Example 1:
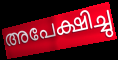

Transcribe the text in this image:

അപേക്ഷിച്ചു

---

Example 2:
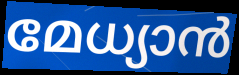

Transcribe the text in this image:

മേധ്യാൻ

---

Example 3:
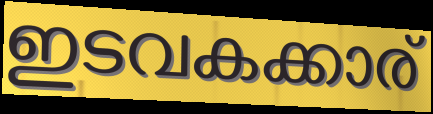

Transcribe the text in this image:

ഇടവകക്കാര്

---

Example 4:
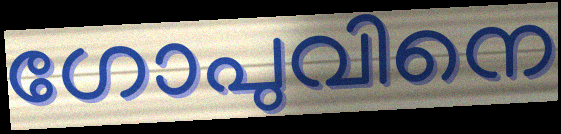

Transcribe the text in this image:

ഗോപുവിനെ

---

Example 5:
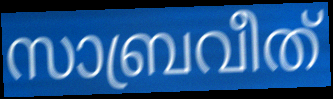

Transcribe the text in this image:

സാബ്രവീത്